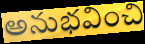
అనుభవించి